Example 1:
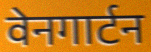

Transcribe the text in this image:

वेनगार्टन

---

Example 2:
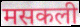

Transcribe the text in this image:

मसकली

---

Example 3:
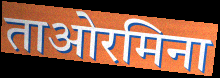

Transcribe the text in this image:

ताओरमिना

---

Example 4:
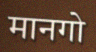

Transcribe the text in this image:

मानगो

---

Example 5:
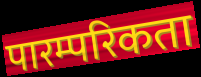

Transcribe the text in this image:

पारम्परिकता